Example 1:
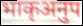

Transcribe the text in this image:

भाकृअनुप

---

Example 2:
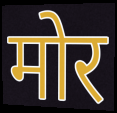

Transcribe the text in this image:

मोर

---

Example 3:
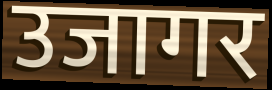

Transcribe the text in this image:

उजागर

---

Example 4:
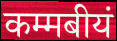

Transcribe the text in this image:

कम्मबीयं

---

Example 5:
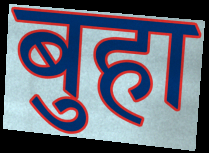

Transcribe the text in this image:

बुहा